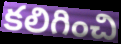
కలిగించి